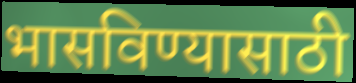
भासविण्यासाठी